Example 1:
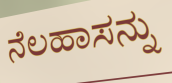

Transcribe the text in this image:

ನೆಲಹಾಸನ್ನು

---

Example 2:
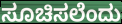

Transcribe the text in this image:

ಸೂಚಿಸಲೆಂದು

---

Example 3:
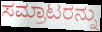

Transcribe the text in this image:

ಸಮ್ರಾಟರನ್ನು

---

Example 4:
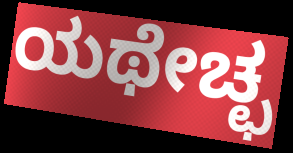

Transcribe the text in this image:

ಯಥೇಚ್ಛ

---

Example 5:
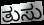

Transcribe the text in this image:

ತುಸು